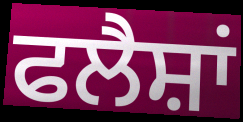
ਫਲੈਸ਼ਾਂ